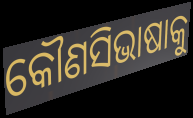
କୌଣସିଭାଷାକୁ